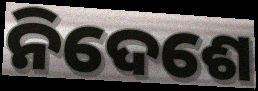
ନିଦେଶେ